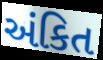
અંકિત